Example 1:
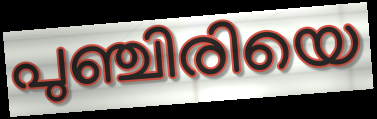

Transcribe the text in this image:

പുഞ്ചിരിയെ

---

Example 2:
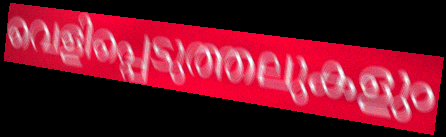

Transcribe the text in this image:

വെളിപ്പെടുത്തലുകളും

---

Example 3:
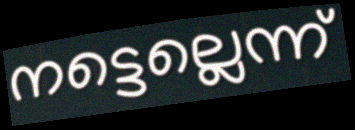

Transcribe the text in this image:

നട്ടെല്ലെന്ന്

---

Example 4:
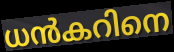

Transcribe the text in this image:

ധൻകറിനെ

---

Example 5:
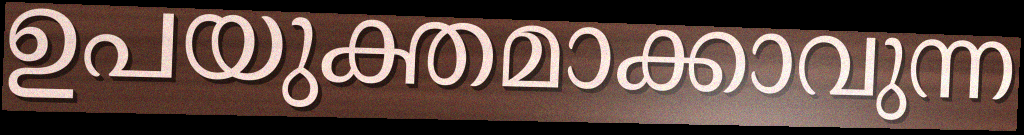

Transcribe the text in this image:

ഉപയുക്തമാക്കാവുന്ന